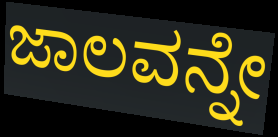
ಜಾಲವನ್ನೇ